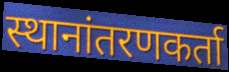
स्थानांतरणकर्ता